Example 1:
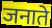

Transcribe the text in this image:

जनाते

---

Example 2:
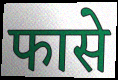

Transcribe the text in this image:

फासे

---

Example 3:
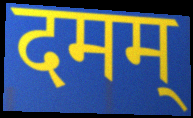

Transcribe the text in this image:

दमम्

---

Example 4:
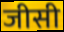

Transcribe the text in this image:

जीसी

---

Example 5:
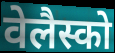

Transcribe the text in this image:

वेलैस्को